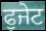
ਫੁਜੇਟ